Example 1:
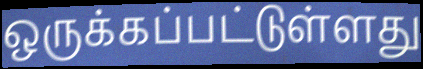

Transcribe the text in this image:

ஒருக்கப்பட்டுள்ளது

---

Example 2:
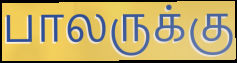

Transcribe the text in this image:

பாலருக்கு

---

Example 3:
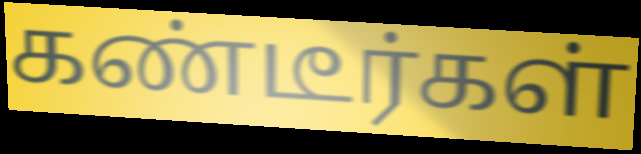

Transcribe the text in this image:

கண்டீர்கள்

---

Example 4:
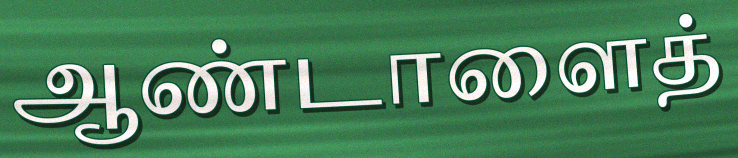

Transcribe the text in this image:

ஆண்டாளைத்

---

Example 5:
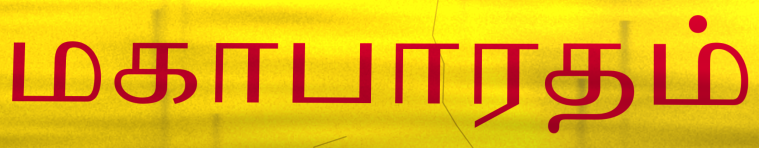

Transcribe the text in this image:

மகாபாரதம்